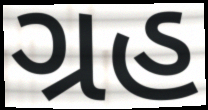
ગ્રહ